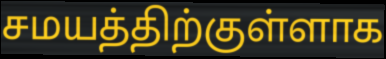
சமயத்திற்குள்ளாக